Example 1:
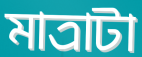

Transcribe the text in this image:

মাত্রাটা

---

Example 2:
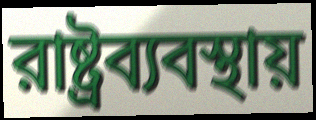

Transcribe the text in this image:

রাষ্ট্রব্যবস্থায়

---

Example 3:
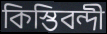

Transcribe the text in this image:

কিস্তিবন্দী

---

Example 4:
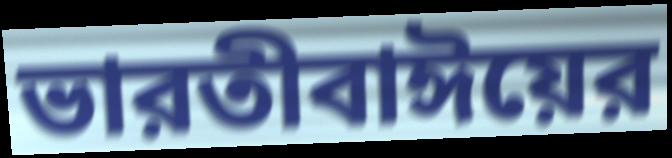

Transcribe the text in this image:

ভারতীবাঈয়ের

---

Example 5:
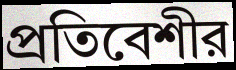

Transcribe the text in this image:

প্রতিবেশীর